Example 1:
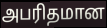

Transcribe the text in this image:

அபரிதமான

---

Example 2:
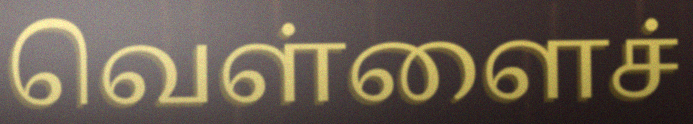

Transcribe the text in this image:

வெள்ளைச்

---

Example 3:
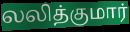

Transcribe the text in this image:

லலித்குமார்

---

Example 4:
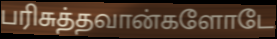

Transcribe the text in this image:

பரிசுத்தவான்களோடே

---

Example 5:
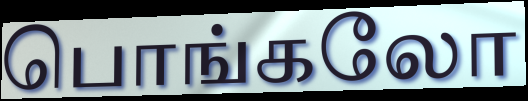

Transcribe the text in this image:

பொங்கலோ